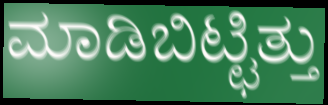
ಮಾಡಿಬಿಟ್ಟಿತ್ತು